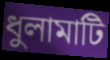
ধুলামাটি